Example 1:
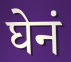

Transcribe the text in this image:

घेनं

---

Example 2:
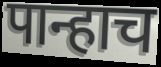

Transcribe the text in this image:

पान्हाच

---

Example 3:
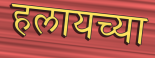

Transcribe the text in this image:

हलायच्या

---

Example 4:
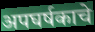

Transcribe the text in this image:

अपघर्षकाचे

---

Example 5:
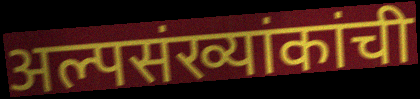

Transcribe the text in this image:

अल्पसंख्यांकांची